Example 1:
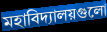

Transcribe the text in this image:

মহাবিদ্যালয়গুলো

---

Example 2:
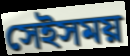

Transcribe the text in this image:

সেইসময়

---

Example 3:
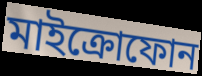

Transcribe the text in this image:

মাইক্রোফোন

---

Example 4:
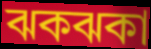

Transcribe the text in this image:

ঝকঝকা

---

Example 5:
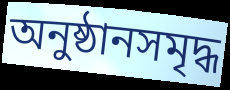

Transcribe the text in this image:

অনুষ্ঠানসমৃদ্ধ